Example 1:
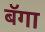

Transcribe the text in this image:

बॅगा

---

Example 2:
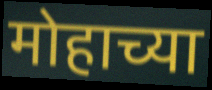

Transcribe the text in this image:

मोहाच्या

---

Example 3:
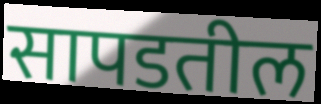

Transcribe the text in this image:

सापडतील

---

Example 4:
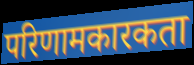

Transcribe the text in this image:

परिणामकारकता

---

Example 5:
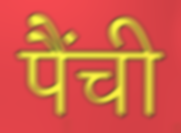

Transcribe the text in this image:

पैंची